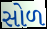
સોળ